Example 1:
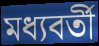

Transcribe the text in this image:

মধ্যবর্তী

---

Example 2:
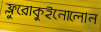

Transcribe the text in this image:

ফ্লুরোকুইনোলোন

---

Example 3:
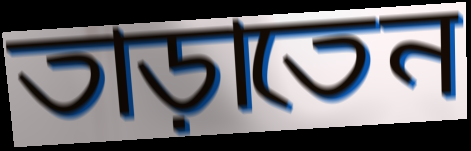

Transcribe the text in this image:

তাড়াতেন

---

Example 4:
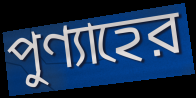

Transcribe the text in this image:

পুণ্যাহের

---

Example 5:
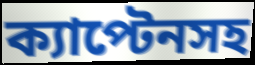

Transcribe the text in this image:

ক্যাপ্টেনসহ